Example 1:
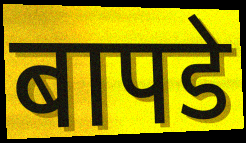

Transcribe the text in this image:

बापडे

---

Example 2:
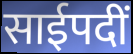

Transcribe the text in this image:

साईपदीं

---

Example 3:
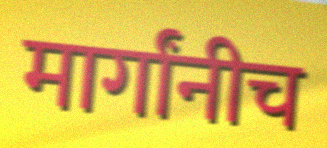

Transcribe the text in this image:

मार्गांनीच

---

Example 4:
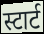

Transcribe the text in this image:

स्टार्ट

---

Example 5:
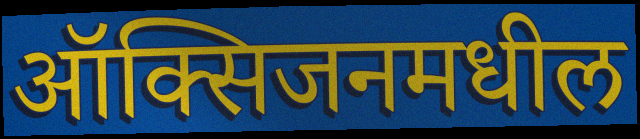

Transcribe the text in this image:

ऑक्सिजनमधील